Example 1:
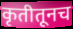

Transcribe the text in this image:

कृतीतूनच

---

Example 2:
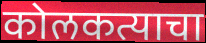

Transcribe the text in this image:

कोलकत्याचा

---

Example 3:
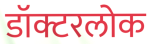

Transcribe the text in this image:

डॉक्टरलोक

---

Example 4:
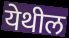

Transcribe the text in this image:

येथील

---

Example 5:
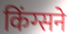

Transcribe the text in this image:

किंग्सने